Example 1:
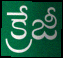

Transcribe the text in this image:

క్రేజీ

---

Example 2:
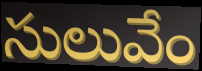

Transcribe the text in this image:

సులువేం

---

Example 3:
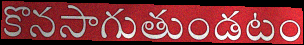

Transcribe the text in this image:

కొనసాగుతుండటం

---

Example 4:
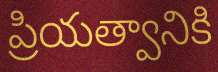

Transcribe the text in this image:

ప్రియత్వానికి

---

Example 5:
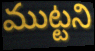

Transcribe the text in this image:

ముట్టని